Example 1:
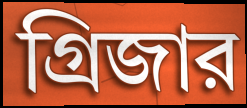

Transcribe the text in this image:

গ্রিজার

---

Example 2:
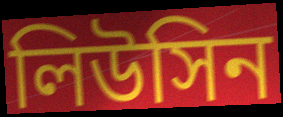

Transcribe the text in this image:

লিউসিন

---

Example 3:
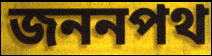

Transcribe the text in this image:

জননপথ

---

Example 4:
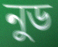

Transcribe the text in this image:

নুড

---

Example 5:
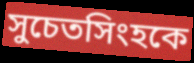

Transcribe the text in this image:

সুচেতসিংহকে